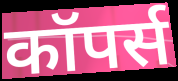
कॉपर्स